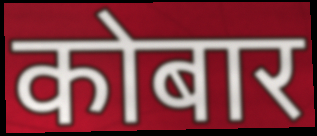
कोबार